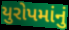
યુરોપમાંનું